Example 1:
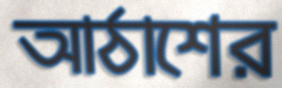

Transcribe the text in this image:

আঠাশের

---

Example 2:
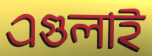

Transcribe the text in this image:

এগুলাই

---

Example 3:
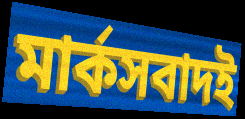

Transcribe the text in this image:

মার্কসবাদই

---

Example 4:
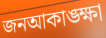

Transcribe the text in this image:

জনআকাঙ্ক্ষা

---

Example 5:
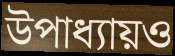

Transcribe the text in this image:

উপাধ্যায়ও